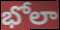
భోలా